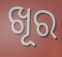
ଖୂର